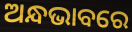
ଅନ୍ଧଭାବରେ